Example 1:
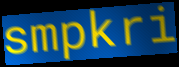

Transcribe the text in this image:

smpkri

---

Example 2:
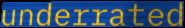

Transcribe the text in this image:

underrated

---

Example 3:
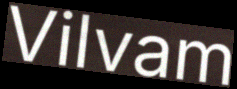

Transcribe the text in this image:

Vilvam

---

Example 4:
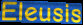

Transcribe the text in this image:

Eleusis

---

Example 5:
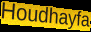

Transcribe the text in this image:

Houdhayfa